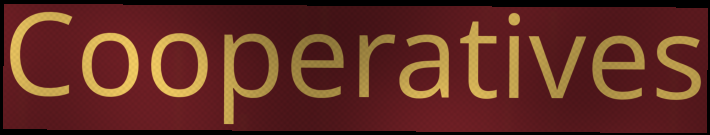
Cooperatives